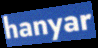
hanyar